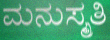
ಮನುಸ್ಮೃತಿ